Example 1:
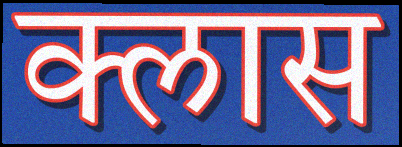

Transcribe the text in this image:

क्लास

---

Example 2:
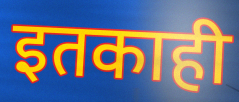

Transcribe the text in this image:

इतकाही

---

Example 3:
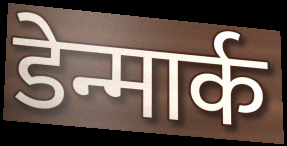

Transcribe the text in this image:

डेन्मार्क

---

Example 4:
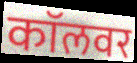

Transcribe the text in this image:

कॉलवर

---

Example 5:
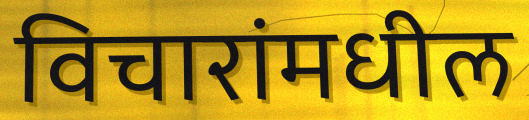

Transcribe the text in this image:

विचारांमधील